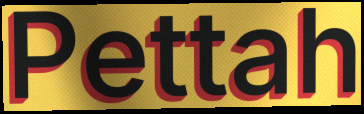
Pettah